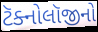
ટૅક્નોલૉજીનો